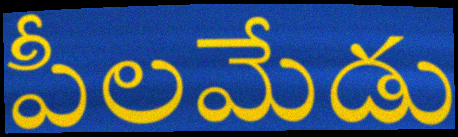
పీలమేడు